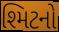
શ્મિટનો